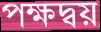
পক্ষদ্বয়